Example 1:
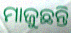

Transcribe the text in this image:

ମାଜୁଛନ୍ତି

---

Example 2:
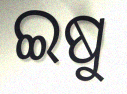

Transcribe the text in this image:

ଇଷୁ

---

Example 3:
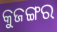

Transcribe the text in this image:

କୁଜଙ୍ଗର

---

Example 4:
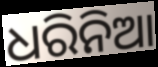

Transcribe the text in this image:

ଧରିନିଆ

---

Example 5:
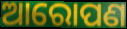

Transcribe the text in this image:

ଆରୋପଣ